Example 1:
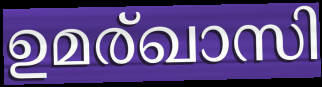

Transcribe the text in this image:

ഉമര്ഖാസി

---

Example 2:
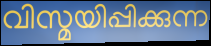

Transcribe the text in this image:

വിസ്മയിപ്പിക്കുന്ന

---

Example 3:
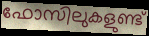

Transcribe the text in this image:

ഫോസിലുകളുണ്ട്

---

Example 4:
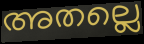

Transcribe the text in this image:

അതല്ലെ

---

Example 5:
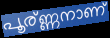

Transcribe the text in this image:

പൂര്ണ്ണനാണ്